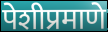
पेशीप्रमाणे